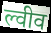
ल्वीव